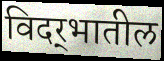
विदर्भातील